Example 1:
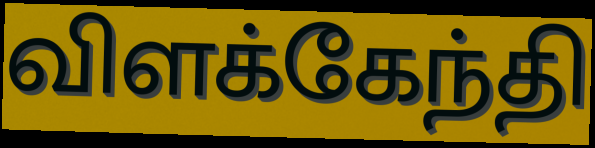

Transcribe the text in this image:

விளக்கேந்தி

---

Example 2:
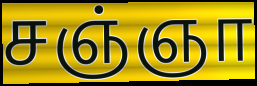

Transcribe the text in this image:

சஞ்ஞா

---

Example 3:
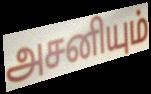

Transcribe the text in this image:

அசனியும்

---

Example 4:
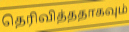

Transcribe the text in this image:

தெரிவித்ததாகவும்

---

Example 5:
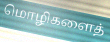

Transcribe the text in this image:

மொழிகளைத்